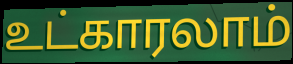
உட்காரலாம்